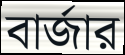
বার্জার